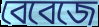
বেবেজে